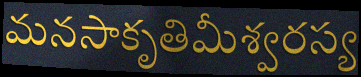
మనసాకృతిమీశ్వరస్య